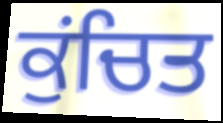
ਕੁਂਚਿਤ